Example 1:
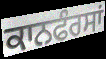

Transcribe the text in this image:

ਕਾਨਫੰਰਸਾਂ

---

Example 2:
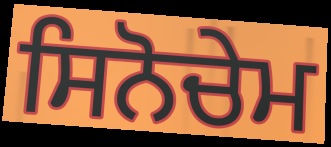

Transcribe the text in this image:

ਸਿਨੋਚੇਮ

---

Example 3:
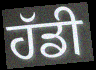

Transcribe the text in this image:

ਹੱਡੀ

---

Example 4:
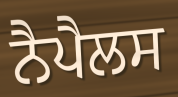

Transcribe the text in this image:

ਨੈਪੈਲਸ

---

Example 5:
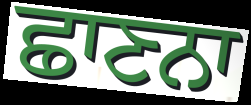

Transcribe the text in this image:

ਛਾਣਨਾ